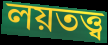
লয়তত্ত্ব